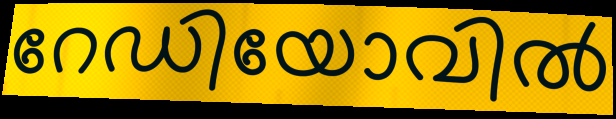
റേഡിയോവിൽ